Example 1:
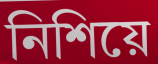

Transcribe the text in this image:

নিশিয়ে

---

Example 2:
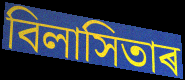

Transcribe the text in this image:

বিলাসিতাৰ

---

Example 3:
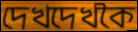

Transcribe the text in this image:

দেখদেখকৈ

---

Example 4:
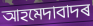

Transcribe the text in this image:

আহমেদাবাদৰ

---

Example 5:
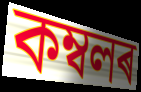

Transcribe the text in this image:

কম্বলৰ